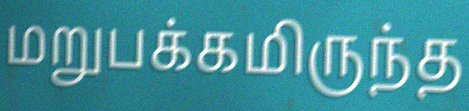
மறுபக்கமிருந்த